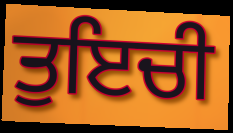
ਤੁਇਚੀ